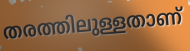
തരത്തിലുള്ളതാണ്